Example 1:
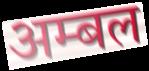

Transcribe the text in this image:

अम्बल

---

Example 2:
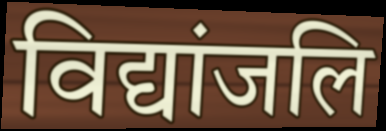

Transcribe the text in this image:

विद्यांजलि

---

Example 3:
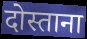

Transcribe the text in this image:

दोस्ताना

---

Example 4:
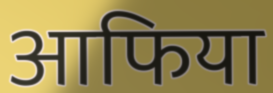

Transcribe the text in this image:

आफिया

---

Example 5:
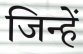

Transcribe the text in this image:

जिन्‍हें